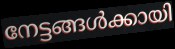
നേട്ടങ്ങൾക്കായി